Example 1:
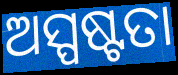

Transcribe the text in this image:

ଅସ୍ପଷ୍ଟତା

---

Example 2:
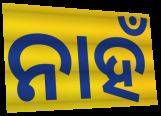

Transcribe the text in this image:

ନାହଁ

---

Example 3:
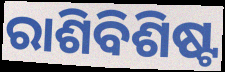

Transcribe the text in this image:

ରାଶିବିଶିଷ୍ଟ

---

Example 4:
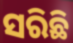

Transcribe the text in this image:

ସରିଛି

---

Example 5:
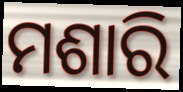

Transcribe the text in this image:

ମଶାରି